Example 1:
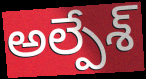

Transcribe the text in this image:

అల్పేశ్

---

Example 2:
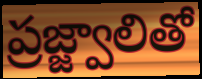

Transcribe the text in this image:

ప్రజ్జ్వాలితో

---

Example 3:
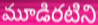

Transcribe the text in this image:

మూడిరటిని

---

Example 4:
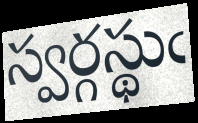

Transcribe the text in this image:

స్వర్గస్థుఁ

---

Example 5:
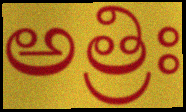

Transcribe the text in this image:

అత్రిః